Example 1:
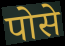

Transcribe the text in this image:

पोसे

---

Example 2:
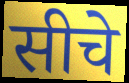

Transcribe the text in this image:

सीचे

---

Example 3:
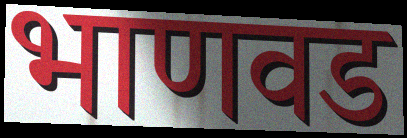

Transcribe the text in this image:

भाणवड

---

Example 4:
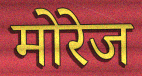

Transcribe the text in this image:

मोरेज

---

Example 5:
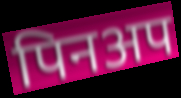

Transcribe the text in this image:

पिनअप